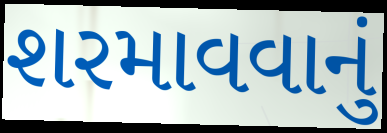
શરમાવવાનું